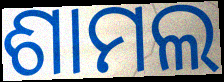
ଶାମଲ